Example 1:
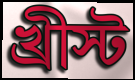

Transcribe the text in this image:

খ্রীস্ট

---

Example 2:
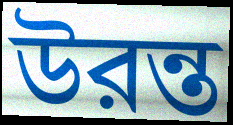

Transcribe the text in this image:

উরন্ত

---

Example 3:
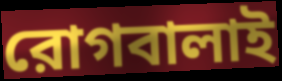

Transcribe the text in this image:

রোগবালাই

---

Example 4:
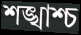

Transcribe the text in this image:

শঙ্খাশ্চ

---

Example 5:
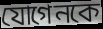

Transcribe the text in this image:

যোগেনকে